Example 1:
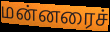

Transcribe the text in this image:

மன்னரைச்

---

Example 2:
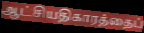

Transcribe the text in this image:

ஆட்சியதிகாரத்தைப்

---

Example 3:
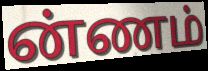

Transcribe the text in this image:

ன்ணம்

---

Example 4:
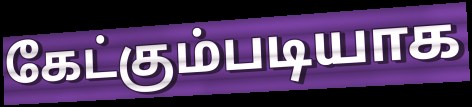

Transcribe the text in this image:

கேட்கும்படியாக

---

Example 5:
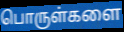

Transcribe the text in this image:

பொருள்களை